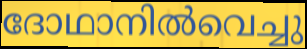
ദോഥാനിൽവെച്ചു